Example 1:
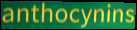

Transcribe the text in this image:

anthocynins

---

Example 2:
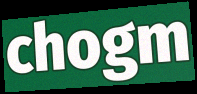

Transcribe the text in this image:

chogm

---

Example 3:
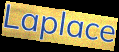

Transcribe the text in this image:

Laplace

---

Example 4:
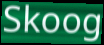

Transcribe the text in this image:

Skoog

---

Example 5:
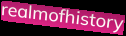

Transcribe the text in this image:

realmofhistory